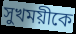
সুখময়ীকে